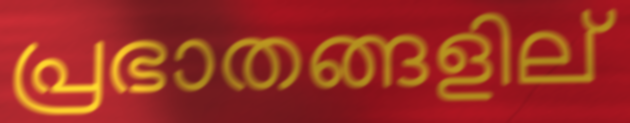
പ്രഭാതങ്ങളില്